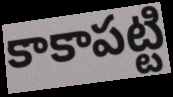
కాకాపట్టి